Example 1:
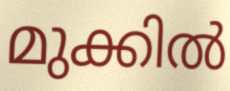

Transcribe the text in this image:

മുക്കിൽ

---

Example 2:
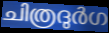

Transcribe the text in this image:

ചിത്രദുർഗ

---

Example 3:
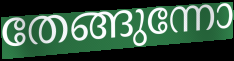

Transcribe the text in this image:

തേങ്ങുന്നോ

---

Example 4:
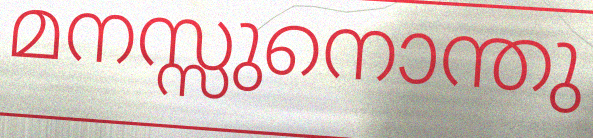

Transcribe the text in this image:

മനസ്സുനൊന്തു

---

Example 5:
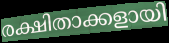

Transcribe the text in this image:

രക്ഷിതാക്കളായി